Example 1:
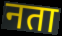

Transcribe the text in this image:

नता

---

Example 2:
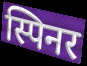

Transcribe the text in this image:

स्पिनर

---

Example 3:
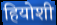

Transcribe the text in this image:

हियोशी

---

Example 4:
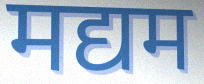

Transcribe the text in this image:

मद्यम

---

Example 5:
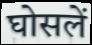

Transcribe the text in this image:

घोसलें